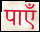
पाएँ